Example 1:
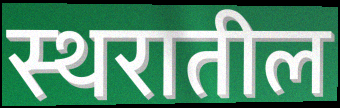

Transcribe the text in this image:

स्थरातील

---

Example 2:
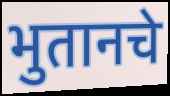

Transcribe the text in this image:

भुतानचे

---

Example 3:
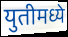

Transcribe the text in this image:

युतीमध्ये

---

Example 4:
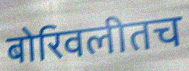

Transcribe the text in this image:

बोरिवलीतच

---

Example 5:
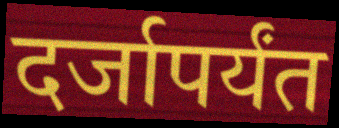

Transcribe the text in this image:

दर्जापर्यंत